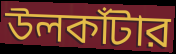
উলকাঁটার